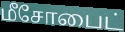
மீசோபைட்